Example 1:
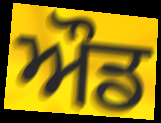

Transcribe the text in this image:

ਔਡ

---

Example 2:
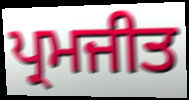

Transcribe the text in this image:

ਪ੍ਰਮਜੀਤ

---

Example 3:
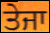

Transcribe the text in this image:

ਤੇਜਾ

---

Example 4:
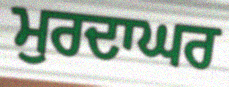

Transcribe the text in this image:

ਮੁਰਦਾਘਰ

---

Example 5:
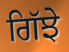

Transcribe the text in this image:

ਗਿੱਝੇ